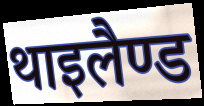
थाइलैण्ड